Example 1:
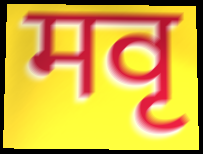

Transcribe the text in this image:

मवृ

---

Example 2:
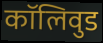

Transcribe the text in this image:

कॉलिवुड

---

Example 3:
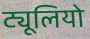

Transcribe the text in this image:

ट्यूलियो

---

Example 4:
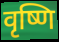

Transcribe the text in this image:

वृष्णि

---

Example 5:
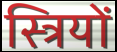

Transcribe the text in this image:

स्‍त्रियों